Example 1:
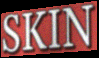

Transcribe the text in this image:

SKIN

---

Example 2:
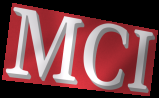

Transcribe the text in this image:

MCI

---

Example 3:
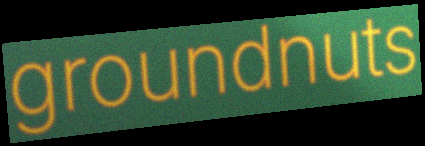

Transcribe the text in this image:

groundnuts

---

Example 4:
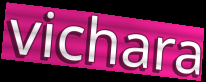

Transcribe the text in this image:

vichara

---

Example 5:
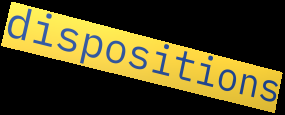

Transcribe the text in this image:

dispositions